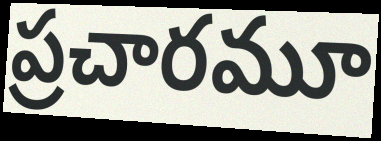
ప్రచారమూ